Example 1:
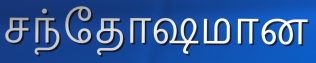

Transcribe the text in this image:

சந்தோஷமான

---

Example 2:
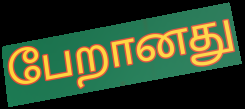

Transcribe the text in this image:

பேறானது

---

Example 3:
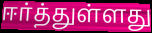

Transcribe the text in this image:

ஈர்த்துள்ளது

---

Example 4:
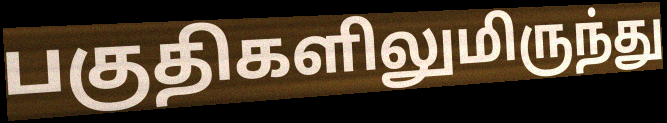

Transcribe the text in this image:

பகுதிகளிலுமிருந்து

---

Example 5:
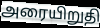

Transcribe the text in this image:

அரையிறுதி